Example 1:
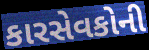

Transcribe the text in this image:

કારસેવકોની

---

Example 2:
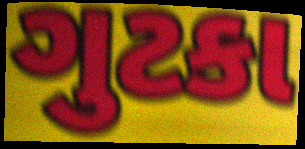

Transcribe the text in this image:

ગુટકા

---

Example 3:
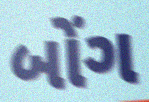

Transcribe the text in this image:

બોંગ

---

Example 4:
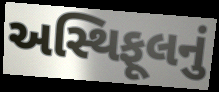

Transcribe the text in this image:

અસ્થિફૂલનું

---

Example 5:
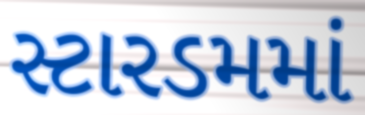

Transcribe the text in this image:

સ્ટારડમમાં